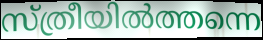
സ്ത്രീയിൽത്തന്നെ